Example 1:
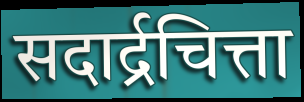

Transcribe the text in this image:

सदार्द्रचित्ता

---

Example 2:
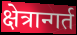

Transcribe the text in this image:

क्षेत्रान्गर्त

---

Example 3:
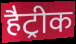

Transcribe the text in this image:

हैट्रीक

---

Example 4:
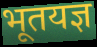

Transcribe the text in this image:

भूतयज्ञ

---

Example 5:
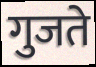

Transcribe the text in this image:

गुजते